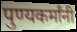
पुण्यकर्मांनी